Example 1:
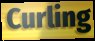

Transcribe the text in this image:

Curling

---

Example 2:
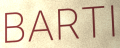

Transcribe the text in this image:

BARTI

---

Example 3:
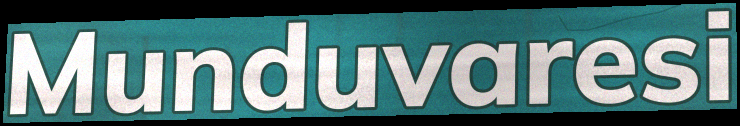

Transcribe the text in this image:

Munduvaresi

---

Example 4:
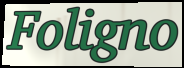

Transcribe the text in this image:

Foligno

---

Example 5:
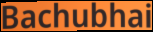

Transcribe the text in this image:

Bachubhai